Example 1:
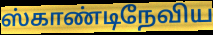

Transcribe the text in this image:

ஸ்காண்டிநேவிய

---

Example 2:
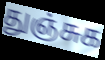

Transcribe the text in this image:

துஞ்சுக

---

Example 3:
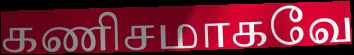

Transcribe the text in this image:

கணிசமாகவே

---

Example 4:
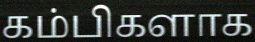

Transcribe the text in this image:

கம்பிகளாக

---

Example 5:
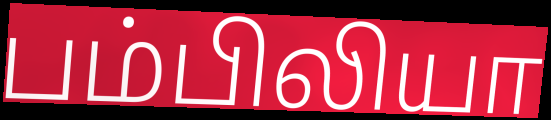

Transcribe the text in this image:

பம்பிலியா